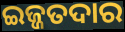
ଇଜ୍ଜତଦାର